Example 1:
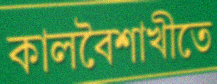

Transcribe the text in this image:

কালবৈশাখীতে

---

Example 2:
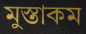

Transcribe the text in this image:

মুস্তাকম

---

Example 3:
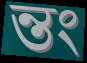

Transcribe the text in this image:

ন্তং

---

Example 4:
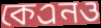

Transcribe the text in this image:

কেএনও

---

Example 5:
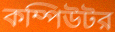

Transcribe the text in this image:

কম্পিউটর